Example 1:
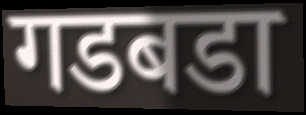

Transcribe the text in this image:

गडबडा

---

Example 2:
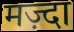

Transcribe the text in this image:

मज़्दा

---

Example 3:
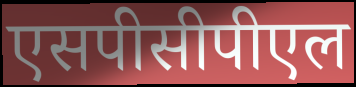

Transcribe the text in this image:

एसपीसीपीएल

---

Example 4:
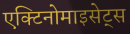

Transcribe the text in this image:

एक्टिनोमाइसेट्स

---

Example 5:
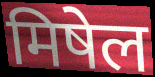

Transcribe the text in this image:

मिषेल